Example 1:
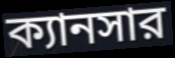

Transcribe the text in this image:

ক্যানসার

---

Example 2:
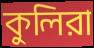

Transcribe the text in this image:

কুলিরা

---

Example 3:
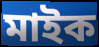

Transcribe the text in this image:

মাইক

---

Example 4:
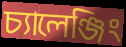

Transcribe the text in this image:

চ্যালেঞ্জিং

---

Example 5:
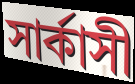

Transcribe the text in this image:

সার্কাসী